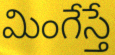
మింగేస్తే